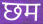
छम